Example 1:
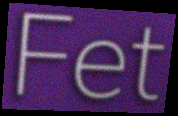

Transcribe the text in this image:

Fet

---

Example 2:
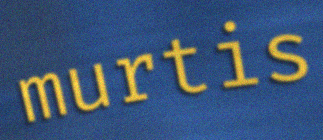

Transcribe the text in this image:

murtis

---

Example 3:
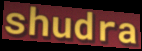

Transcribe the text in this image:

shudra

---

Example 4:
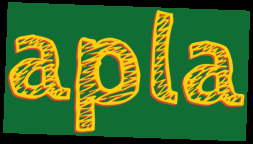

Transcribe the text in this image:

apla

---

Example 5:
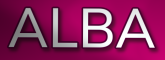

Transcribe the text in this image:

ALBA